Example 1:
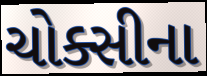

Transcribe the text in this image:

ચોક્સીના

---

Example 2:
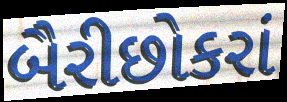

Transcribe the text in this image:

બૈરીછોકરાં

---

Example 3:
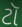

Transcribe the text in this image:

ટૉ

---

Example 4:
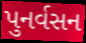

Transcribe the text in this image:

પુનર્વસન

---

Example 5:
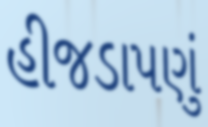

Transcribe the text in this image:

હીજડાપણું